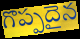
గొప్పదైన